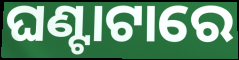
ଘଣ୍ଟାଟାରେ